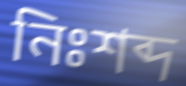
নিঃশব্দ